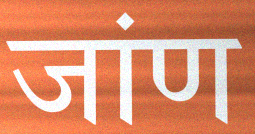
जांण